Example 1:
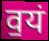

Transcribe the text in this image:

व॒यं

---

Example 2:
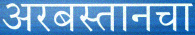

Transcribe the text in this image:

अरबस्तानचा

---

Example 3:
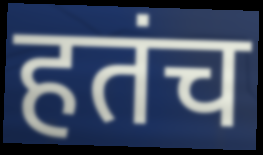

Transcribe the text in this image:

हतंच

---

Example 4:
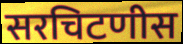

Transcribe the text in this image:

सरचिटणीस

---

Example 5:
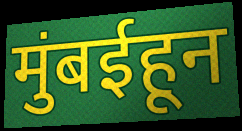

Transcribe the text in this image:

मुंबईहून